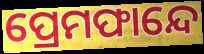
ପ୍ରେମଫାନ୍ଦେ